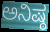
ಅನಿಷ್ಠ